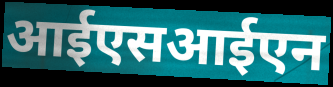
आईएसआईएन